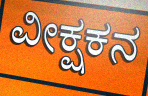
ವೀಕ್ಷಕನ